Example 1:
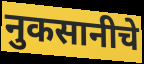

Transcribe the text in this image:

नुकसानीचे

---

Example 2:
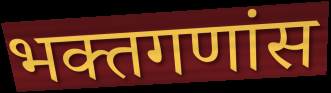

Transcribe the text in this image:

भक्तगणांस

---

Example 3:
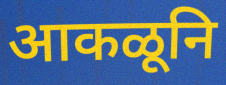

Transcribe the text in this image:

आकळूनि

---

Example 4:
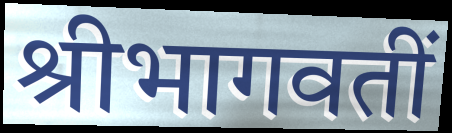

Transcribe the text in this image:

श्रीभागवतीं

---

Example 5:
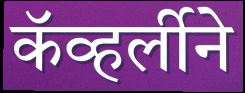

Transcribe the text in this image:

कॅव्हर्लीने